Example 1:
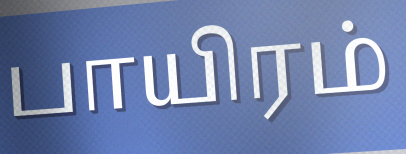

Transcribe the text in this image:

பாயிரம்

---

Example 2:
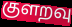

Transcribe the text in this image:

குளறவு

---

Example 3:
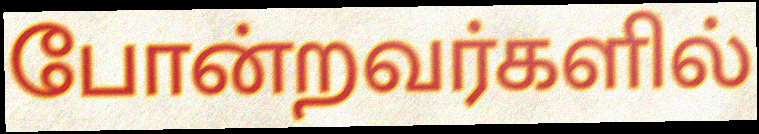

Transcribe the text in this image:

போன்றவர்களில்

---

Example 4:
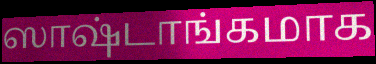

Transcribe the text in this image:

ஸாஷ்டாங்கமாக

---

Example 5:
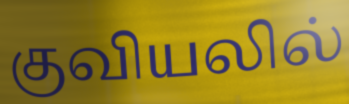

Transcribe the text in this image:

குவியலில்